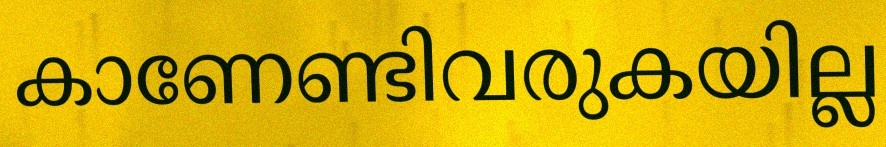
കാണേണ്ടിവരുകയില്ല